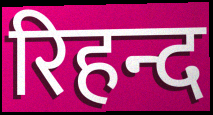
रिहन्द